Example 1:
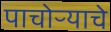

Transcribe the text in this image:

पाचोऱ्याचे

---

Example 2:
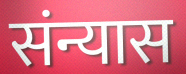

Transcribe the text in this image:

संन्यास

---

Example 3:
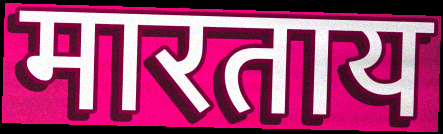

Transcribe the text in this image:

मारताय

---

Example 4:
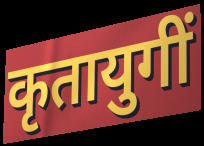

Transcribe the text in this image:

कृतायुगीं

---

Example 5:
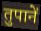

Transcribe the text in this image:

तुपानें